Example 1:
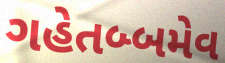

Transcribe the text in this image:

ગહેતબ્બમેવ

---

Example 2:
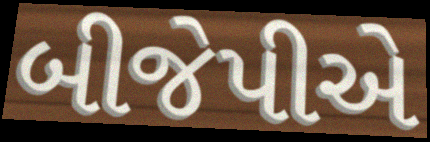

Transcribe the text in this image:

બીજેપીએ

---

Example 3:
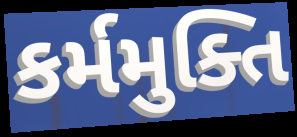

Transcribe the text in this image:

કર્મમુક્તિ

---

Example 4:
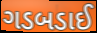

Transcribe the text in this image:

ગડબડાઈ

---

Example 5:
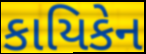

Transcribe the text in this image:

કાયિકેન